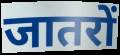
जातरों